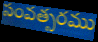
సంవత్సరము